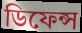
ডিফেন্স